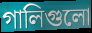
গালিগুলো